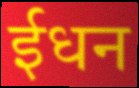
ईधन